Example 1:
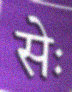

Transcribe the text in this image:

सेः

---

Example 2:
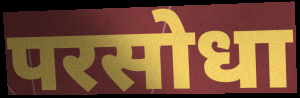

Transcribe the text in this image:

परसोधा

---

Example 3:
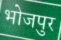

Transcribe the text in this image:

भोजपुर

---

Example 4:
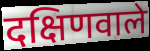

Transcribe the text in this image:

दक्षिणवाले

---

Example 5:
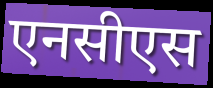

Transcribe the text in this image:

एनसीएस